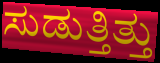
ಸುಡುತ್ತಿತ್ತು